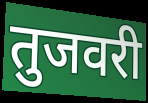
तुजवरी